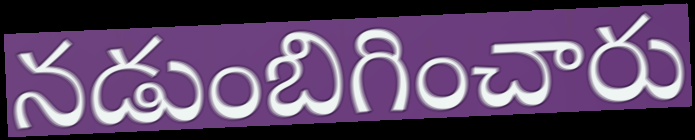
నడుంబిగించారు